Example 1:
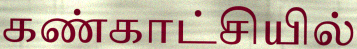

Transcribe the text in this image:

கண்காட்சியில்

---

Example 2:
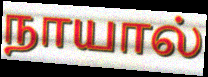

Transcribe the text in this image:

நாயால்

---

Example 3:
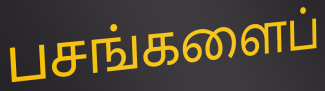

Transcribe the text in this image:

பசங்களைப்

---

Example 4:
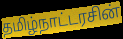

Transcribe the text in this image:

தமிழ்நாட்டரசின்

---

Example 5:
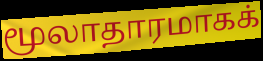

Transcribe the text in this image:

மூலாதாரமாகக்